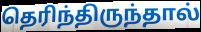
தெரிந்திருந்தால்